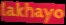
lakhayo